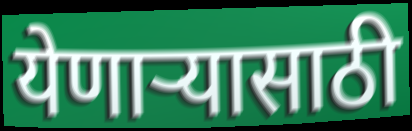
येणाऱ्यासाठी